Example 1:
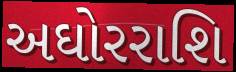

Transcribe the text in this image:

અઘોરરાશિ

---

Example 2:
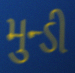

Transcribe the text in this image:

મુન્ડી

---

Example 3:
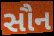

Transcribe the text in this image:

સૌન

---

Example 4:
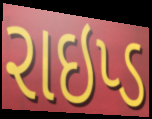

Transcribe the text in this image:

રાઇપ્ડ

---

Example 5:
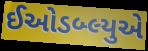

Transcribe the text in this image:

ઈઓડબ્લ્યુએ